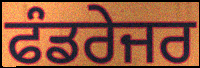
ਫੰਡਰੇਜਰ